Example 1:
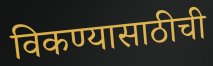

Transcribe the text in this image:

विकण्यासाठीची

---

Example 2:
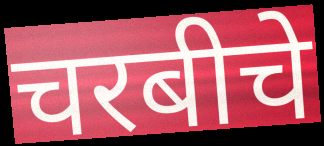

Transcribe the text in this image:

चरबीचे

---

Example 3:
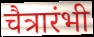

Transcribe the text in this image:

चैत्रारंभी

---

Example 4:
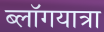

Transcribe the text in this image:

ब्लॉगयात्रा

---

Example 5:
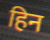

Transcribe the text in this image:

हिन